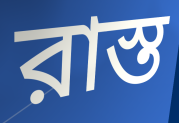
রাস্ত